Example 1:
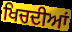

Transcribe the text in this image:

ਖਿਚਦੀਆਂ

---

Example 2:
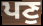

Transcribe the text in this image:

ਪਣੁ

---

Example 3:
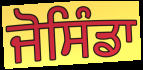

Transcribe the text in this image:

ਜੋਸਿੰਡਾ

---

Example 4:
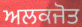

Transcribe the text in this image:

ਅਲਕਜੋਤ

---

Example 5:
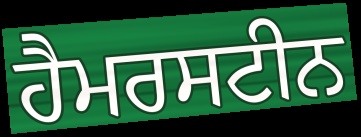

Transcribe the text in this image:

ਹੈਮਰਸਟੀਨ